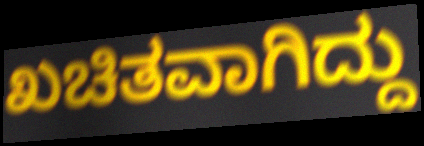
ಖಚಿತವಾಗಿದ್ದು